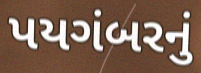
પયગંબરનું